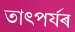
তাৎপৰ্যৰ